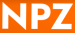
NPZ